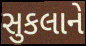
સુકલાને